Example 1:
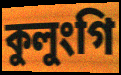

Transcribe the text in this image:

কুলুংগি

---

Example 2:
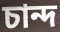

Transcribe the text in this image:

চান্দ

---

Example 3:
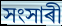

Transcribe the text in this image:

সংসাৰী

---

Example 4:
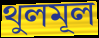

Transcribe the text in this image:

থুলমূল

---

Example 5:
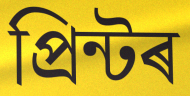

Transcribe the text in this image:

প্ৰিন্টৰ